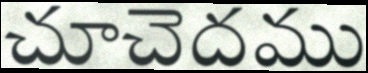
చూచెదము